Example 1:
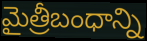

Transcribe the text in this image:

మైత్రీబంధాన్ని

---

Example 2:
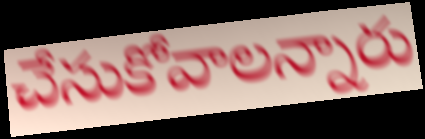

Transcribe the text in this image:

చేసుకోవాలన్నారు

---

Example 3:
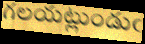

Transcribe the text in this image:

గలయట్లుండుఁ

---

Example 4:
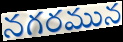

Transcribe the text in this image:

నగరమున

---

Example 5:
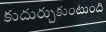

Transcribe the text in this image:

కుదుర్చుకుంటుంది